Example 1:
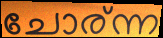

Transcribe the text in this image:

ചോര്ന്ന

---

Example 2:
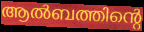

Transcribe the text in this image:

ആൽബത്തിന്റെ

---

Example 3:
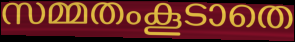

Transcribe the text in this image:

സമ്മതംകൂടാതെ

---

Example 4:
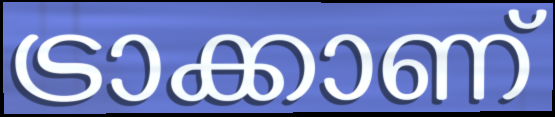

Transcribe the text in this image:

ട്രാക്കാണ്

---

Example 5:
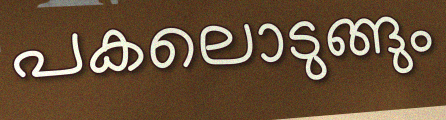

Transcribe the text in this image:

പകലൊടുങ്ങും